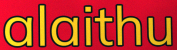
alaithu